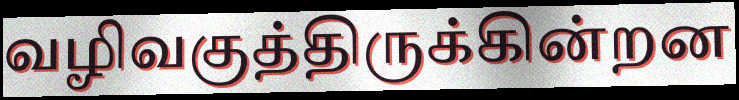
வழிவகுத்திருக்கின்றன